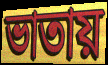
ভাতায়